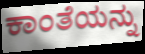
ಕಾಂತೆಯನ್ನು